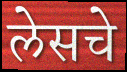
लेसचे